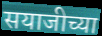
सयाजीच्या